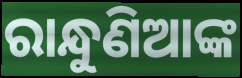
ରାନ୍ଧୁଣିଆଙ୍କ